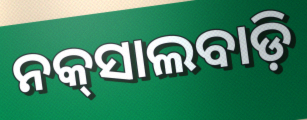
ନକ୍‌ସାଲବାଡ଼ି